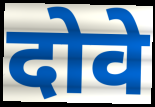
दोवे